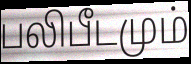
பலிபீடமும்